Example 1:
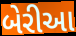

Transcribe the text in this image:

બેરીઆ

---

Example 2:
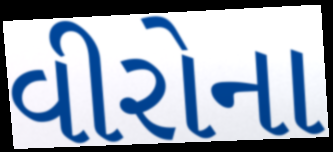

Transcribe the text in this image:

વીરોના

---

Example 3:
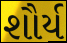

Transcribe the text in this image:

શૌર્ય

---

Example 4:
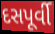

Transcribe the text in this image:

દસપૂર્વી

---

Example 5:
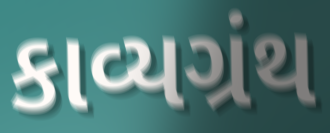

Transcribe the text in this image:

કાવ્યગ્રંથ